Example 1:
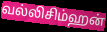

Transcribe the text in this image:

வல்லிசிம்ஹன்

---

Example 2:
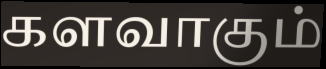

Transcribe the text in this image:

களவாகும்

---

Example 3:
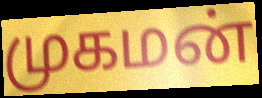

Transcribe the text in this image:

முகமன்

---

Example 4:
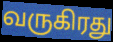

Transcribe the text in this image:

வருகிரது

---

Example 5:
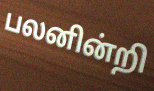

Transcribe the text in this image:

பலனின்றி